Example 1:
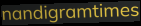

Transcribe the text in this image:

nandigramtimes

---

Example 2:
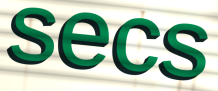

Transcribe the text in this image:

secs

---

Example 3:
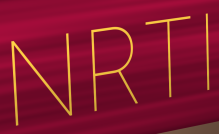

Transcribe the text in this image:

NRTI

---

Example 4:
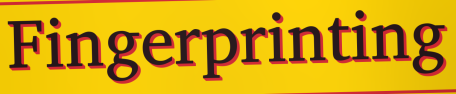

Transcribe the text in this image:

Fingerprinting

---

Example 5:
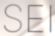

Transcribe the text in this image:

SEI